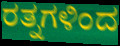
ರತ್ನಗಳಿಂದ